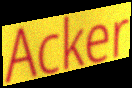
Acker